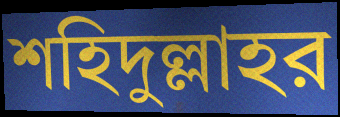
শহিদুল্লাহর